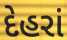
દેહરાં